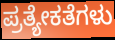
ಪ್ರತ್ಯೇಕತೆಗಳು